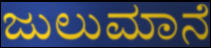
ಜುಲುಮಾನೆ